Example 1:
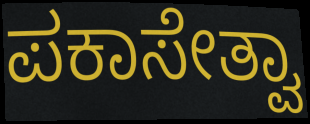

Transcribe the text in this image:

ಪಕಾಸೇತ್ವಾ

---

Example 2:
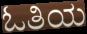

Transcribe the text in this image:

ಓತಿಯ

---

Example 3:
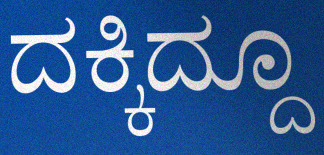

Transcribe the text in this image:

ದಕ್ಕಿದ್ದೂ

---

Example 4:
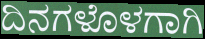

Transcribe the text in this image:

ದಿನಗಳೊಳಗಾಗಿ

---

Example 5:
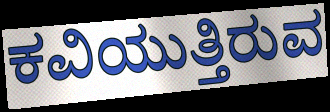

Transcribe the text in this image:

ಕವಿಯುತ್ತಿರುವ